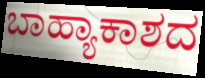
ಬಾಹ್ಯಾಕಾಶದ